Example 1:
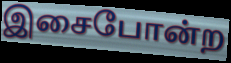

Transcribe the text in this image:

இசைபோன்ற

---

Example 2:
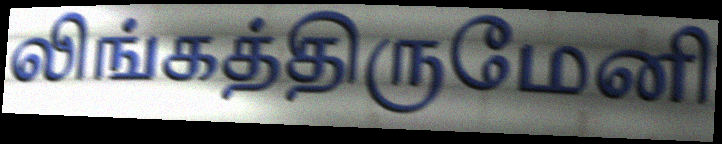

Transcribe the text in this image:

லிங்கத்திருமேனி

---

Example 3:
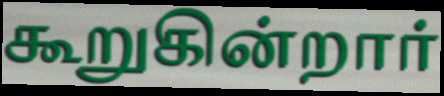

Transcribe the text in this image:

கூறுகின்றார்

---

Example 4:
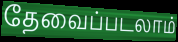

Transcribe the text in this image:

தேவைப்படலாம்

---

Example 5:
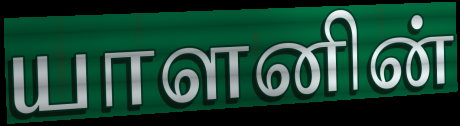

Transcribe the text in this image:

யாளனின்